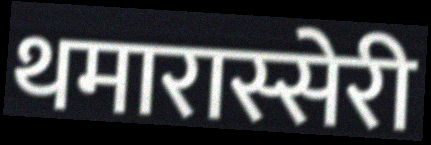
थमारास्सेरी